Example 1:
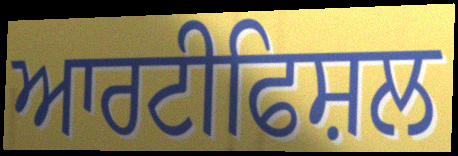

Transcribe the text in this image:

ਆਰਟੀਫਿਸ਼ਲ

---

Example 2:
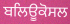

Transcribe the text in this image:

ਬਲਿਊਕੋਸਲ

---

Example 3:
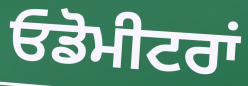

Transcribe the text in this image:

ਓਡੋਮੀਟਰਾਂ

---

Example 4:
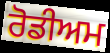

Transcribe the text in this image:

ਰੋਡੀਅਮ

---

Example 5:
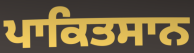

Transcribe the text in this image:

ਪਾਕਿਤਸਾਨ